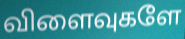
விளைவுகளே